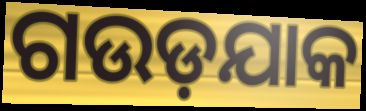
ଗଉଡ଼ଯାକ